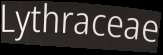
Lythraceae